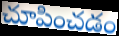
చూపించడం